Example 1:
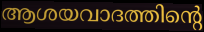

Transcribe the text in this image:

ആശയവാദത്തിന്റെ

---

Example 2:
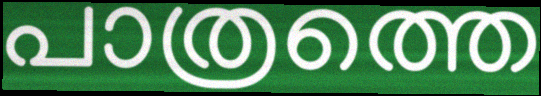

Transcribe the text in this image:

പാത്രത്തെ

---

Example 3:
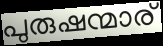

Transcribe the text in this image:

പുരുഷന്മാര്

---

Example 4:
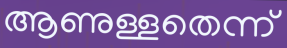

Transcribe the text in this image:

ആണുള്ളതെന്ന്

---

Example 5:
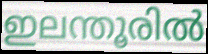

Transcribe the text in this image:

ഇലന്തൂരിൽ